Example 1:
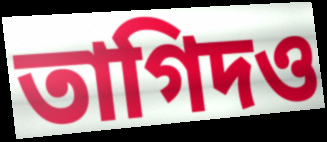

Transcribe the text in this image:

তাগিদও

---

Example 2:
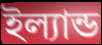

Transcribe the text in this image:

ইল্যান্ড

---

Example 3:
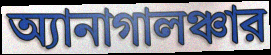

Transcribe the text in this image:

অ্যানাগালঞ্চার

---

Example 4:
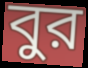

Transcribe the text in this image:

বুর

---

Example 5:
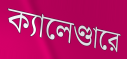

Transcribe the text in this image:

ক্যালেণ্ডারে